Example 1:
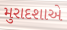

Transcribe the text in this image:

મુરાદશાએ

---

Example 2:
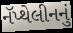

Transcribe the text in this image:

નૅપ્થેલીનનું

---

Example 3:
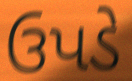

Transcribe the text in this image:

ઉપડે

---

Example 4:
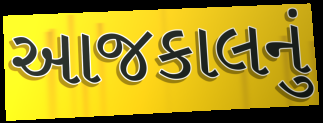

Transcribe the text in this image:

આજકાલનું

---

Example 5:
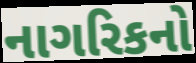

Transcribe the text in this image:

નાગરિકનો